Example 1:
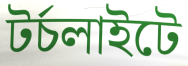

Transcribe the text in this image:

টর্চলাইটে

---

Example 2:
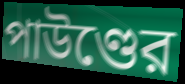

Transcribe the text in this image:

পাউণ্ডের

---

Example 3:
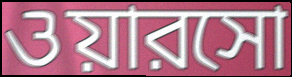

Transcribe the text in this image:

ওয়ারসো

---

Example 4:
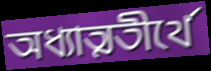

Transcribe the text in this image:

অধ্যাত্মতীর্থে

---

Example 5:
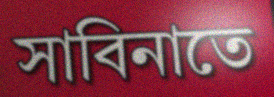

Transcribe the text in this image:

সাবিনাতে